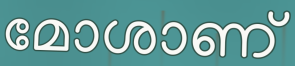
മോശാണ്